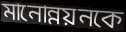
মানোন্নয়নকে